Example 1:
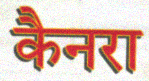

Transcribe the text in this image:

कैनरा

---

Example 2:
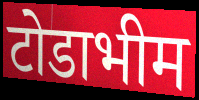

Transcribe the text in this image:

टोडाभीम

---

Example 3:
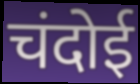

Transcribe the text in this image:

चंदोई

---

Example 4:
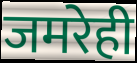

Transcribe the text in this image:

जमरेही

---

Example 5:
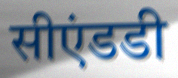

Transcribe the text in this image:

सीएंडडी